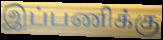
இப்பணிக்கு